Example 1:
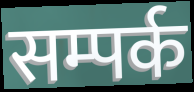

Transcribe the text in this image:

सम्‍पर्क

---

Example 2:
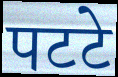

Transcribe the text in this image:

पटटे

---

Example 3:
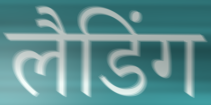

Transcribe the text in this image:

लैडिंग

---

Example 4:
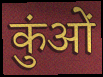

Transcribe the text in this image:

कुंओं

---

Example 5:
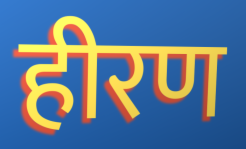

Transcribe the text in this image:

हीरण